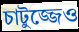
চাটুজ্জেও